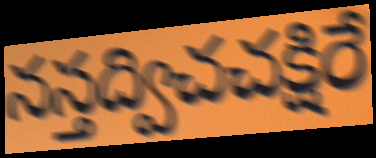
నస్తద్విచచక్షిరే